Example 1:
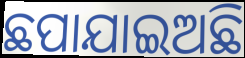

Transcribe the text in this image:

ଛପାଯାଇଅଛି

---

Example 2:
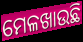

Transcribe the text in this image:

ମେଳଖାଉଛି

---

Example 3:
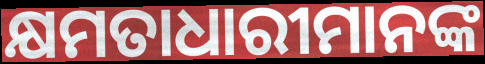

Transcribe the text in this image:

କ୍ଷମତାଧାରୀମାନଙ୍କ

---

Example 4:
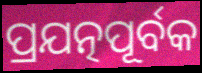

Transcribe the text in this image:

ପ୍ରଯତ୍ନପୂର୍ବକ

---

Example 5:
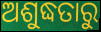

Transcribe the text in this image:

ଅଶୁଦ୍ଧତାରୁ